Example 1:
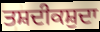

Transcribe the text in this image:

ਤਸ਼ਦੀਕਸ਼ੁਦਾ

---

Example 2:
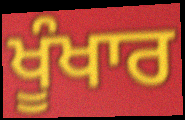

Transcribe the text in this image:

ਖੂੰਖਾਰ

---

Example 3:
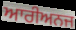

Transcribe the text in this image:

ਆਰੀਅਨਜ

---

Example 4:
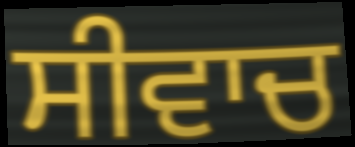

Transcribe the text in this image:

ਸੀਵਾਚ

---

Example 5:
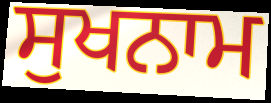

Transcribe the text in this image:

ਸੁਖਨਾਮ